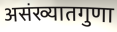
असंख्यातगुणा